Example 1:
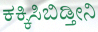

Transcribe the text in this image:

ಕಕ್ಕಿಸಿಬಿಡ್ತೀನಿ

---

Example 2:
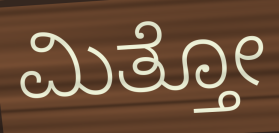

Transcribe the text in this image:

ಮಿತ್ತೋ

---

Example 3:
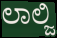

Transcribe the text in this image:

ಲಾಲ್ಜಿ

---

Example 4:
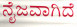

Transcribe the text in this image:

ನೈಜವಾಗಿದೆ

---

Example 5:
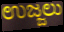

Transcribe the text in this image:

ಉಜ್ಜಲು